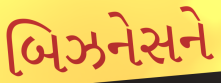
બિઝનેસને